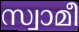
സ്വാമീ